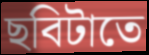
ছবিটাতে